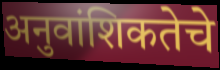
अनुवांशिकतेचे